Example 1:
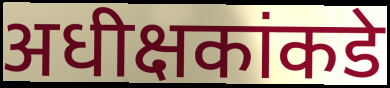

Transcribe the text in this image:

अधीक्षकांकडे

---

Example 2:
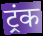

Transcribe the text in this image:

ट्रंक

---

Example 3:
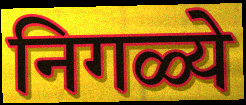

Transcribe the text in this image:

निगळ्ये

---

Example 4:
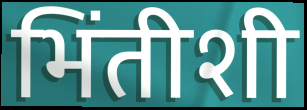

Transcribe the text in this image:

भिंतीशी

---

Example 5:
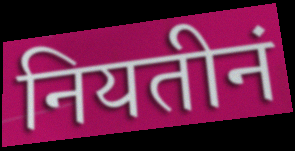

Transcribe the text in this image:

नियतीनं